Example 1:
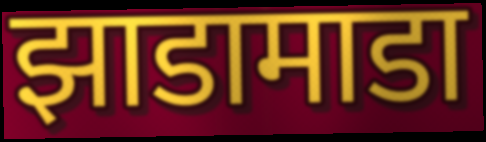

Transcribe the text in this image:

झाडामाडा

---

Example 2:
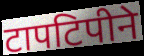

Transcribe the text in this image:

टापटिपीने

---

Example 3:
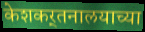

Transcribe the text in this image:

केशकर्तनालयाच्या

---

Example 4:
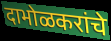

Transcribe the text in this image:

दाभोळकरांचे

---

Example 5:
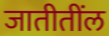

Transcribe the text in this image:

जातीतींल